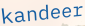
kandeer